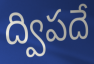
ద్విపదే